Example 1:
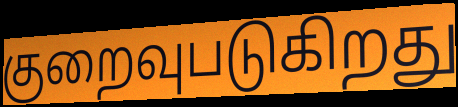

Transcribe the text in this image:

குறைவுபடுகிறது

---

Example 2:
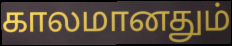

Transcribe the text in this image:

காலமானதும்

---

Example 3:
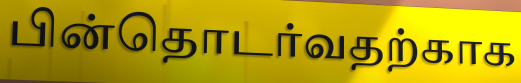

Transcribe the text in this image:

பின்தொடர்வதற்காக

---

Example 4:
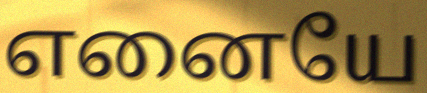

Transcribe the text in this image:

எனையே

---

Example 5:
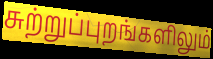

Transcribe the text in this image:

சுற்றுப்புறங்களிலும்